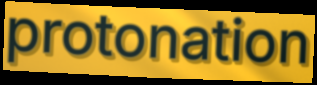
protonation